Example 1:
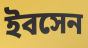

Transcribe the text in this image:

ইবসেন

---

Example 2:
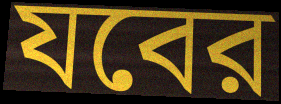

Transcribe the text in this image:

যবের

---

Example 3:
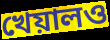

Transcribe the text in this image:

খেয়ালও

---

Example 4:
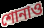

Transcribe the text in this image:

শোনাও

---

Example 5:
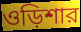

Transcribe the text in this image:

ওড়িশার